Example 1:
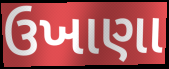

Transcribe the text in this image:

ઉખાણા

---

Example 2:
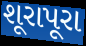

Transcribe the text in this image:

શૂરાપૂરા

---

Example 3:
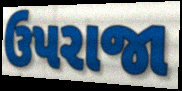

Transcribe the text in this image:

ઉપરાજા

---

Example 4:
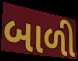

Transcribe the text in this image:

બાળી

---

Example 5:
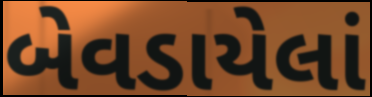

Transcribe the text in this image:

બેવડાયેલાં